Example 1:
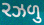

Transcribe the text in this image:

રઝળુ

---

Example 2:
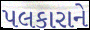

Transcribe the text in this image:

પલકારાને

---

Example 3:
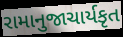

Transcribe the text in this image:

રામાનુજાચાર્યકૃત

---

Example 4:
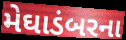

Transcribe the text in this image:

મેઘાડંબરના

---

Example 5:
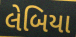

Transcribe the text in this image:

લેબિયા